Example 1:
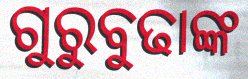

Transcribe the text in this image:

ଗୁରୁବୁଢାଙ୍କ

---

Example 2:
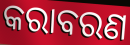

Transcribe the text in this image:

କରାବରଣ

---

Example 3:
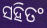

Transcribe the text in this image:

ସହିତଂ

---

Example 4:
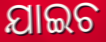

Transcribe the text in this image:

ଯାଇଚ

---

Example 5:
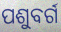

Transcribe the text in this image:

ପଶୁବର୍ଗ